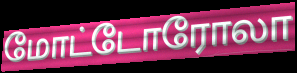
மோட்டோரோலா